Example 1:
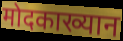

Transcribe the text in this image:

मोदकाख्यान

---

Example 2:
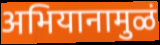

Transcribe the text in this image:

अभियानामुळं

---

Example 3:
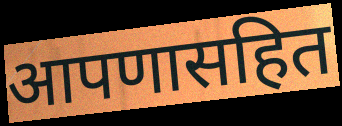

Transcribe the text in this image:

आपणासहित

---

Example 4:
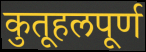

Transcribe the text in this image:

कुतूहलपूर्ण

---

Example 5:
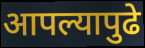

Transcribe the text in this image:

आपल्यापुढे